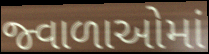
જ્વાળાઓમાં